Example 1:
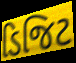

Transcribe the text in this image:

ડિજિટ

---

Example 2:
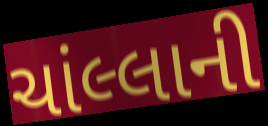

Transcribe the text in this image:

ચાંલ્લાની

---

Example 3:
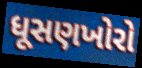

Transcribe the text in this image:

ધૂસણખોરો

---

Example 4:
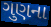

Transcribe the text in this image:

ગુણના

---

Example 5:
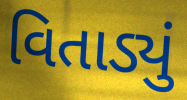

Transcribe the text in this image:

વિતાડ્યું